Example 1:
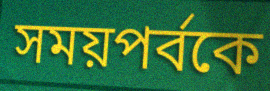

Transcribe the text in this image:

সময়পর্বকে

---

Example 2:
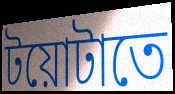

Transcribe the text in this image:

টয়োটাতে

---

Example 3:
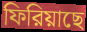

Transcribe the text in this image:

ফিরিয়াছে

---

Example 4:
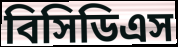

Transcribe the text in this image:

বিসিডিএস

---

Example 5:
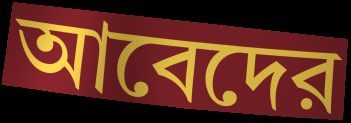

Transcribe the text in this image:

আবেদের